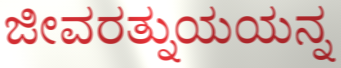
ಜೀವರತ್ನುಯಯನ್ನ